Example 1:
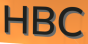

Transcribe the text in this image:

HBC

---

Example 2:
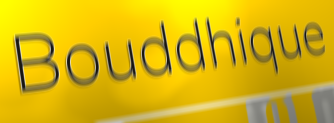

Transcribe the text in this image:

Bouddhique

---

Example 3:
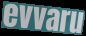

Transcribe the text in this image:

evvaru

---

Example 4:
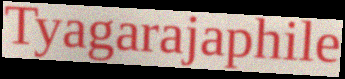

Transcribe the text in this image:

Tyagarajaphile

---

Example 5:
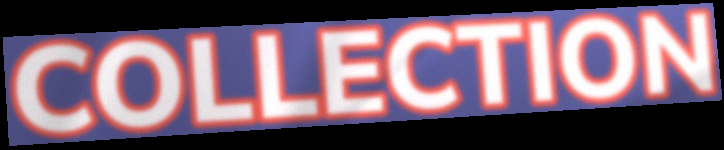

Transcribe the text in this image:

COLLECTION